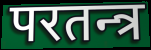
परतन्त्र